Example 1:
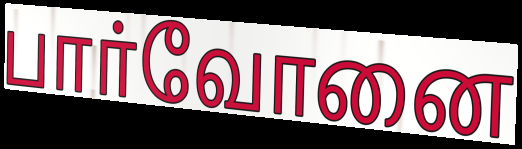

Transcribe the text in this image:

பார்வோனை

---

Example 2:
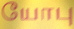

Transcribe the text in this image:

யோபு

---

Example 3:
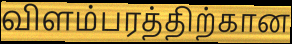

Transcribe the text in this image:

விளம்பரத்திற்கான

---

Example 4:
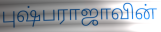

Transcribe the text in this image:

புஷ்பராஜாவின்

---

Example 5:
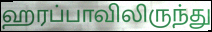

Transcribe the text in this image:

ஹரப்பாவிலிருந்து